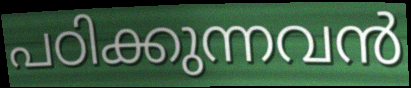
പഠിക്കുന്നവൻ